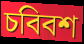
চবিবশ